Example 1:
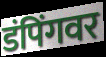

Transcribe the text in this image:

डंपिंगवर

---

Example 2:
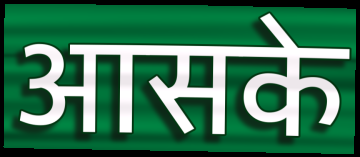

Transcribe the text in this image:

आसके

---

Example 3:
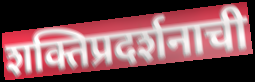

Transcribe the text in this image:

शक्तिप्रदर्शनाची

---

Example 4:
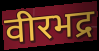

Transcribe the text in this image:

वीरभद्र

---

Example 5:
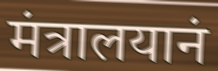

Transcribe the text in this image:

मंत्रालयानं